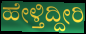
ಹೇಳ್ತಿದ್ದೀರಿ